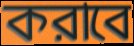
করাবে